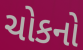
ચોકનો